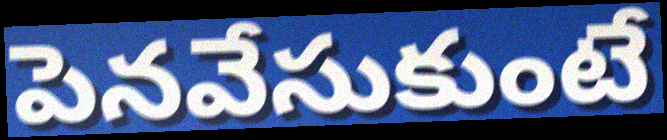
పెనవేసుకుంటే